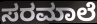
ಸರಮಾಲೆ